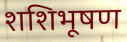
शशिभूषण